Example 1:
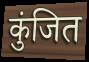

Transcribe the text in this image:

कुंजित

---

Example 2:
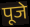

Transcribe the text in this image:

पूजे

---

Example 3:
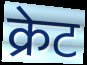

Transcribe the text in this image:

क्रेट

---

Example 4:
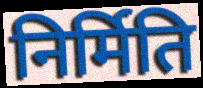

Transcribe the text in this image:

निर्मिति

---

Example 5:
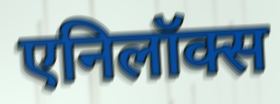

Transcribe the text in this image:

एनिलॉक्स